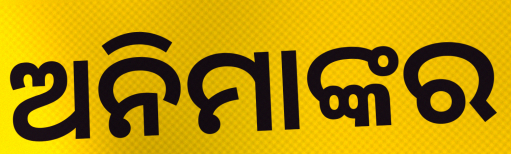
ଅନିମାଙ୍କର